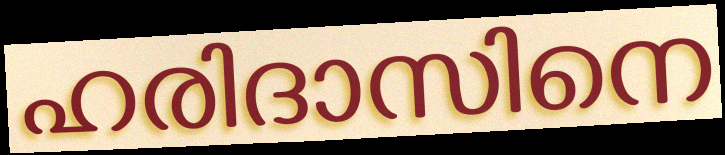
ഹരിദാസിനെ